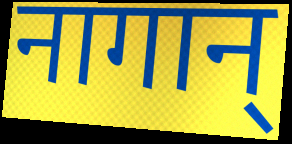
नागान्